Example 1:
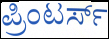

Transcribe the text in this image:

ಪ್ರಿಂಟರ್ಸ್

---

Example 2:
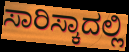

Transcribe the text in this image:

ಸಾರಿಸ್ಕಾದಲ್ಲಿ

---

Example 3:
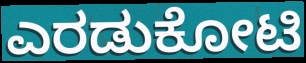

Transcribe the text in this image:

ಎರಡುಕೋಟಿ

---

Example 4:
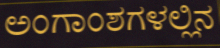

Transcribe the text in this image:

ಅಂಗಾಂಶಗಳಲ್ಲಿನ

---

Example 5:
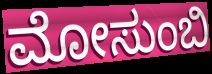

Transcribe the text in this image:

ಮೋಸುಂಬಿ